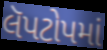
લૅપટોપમાં